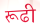
रूढी